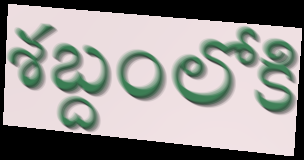
శబ్దంలోకి